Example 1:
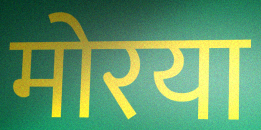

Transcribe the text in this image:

मोरया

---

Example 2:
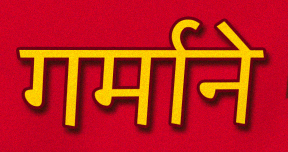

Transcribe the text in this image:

गर्माने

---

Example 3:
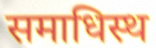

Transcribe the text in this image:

समाधिस्थ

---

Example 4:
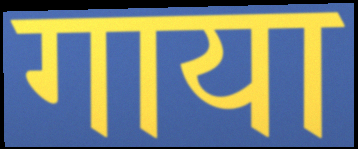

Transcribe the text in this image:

गाया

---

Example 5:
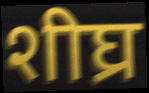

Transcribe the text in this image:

शीघ्र